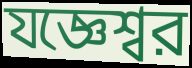
যজ্ঞেশ্বর